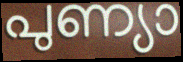
പുണ്യാ